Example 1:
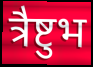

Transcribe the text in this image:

त्रैष्टुभ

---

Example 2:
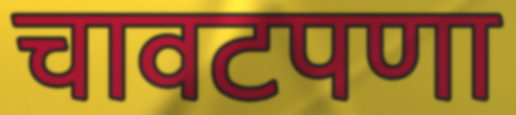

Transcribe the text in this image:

चावटपणा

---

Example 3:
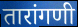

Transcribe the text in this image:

तारांगणी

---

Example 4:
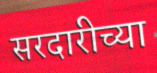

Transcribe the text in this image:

सरदारीच्या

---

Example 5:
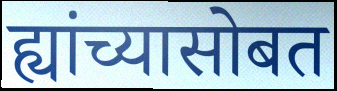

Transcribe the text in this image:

ह्यांच्यासोबत